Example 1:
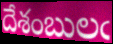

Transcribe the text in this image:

దేశంబులఁ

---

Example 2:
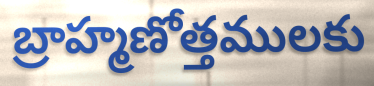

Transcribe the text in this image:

బ్రాహ్మణోత్తములకు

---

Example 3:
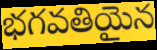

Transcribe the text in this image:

భగవతియైన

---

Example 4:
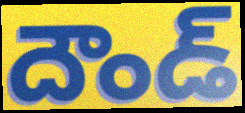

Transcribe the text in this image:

దౌండ్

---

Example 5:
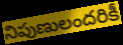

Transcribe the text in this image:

నిపుణులందరికీ